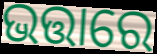
ଭତ୍ତାରେ